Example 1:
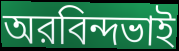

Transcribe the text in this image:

অরবিন্দভাই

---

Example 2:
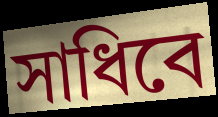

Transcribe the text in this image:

সাধিবে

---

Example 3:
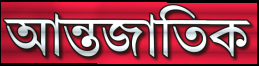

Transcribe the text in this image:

আন্তজাতিক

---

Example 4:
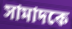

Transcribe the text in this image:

সামাদকে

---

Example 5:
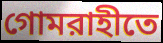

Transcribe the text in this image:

গোমরাহীতে